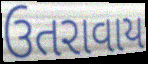
ઉતરાવાય